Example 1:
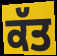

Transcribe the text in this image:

ਕੱਤ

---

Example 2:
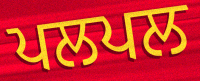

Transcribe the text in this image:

ਪਲਪਲ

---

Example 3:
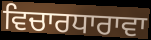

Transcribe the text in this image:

ਵਿਚਾਰਧਾਰਾਵਾ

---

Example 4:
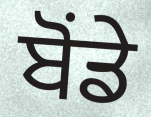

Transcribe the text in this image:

ਬੋਂਡੇ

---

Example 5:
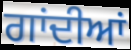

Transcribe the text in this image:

ਗਾਂਦੀਆਂ